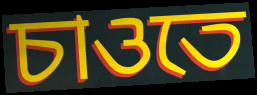
চাওতে